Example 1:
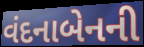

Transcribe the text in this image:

વંદનાબેનની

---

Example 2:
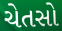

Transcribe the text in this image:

ચેતસો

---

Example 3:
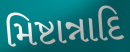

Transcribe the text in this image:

મિષ્ટાન્નાદિ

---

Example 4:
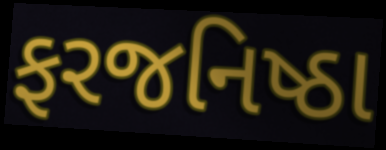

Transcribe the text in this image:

ફરજનિષ્ઠા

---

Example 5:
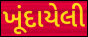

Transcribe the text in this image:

ખૂંદાયેલી